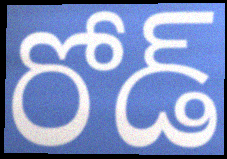
రోడ్